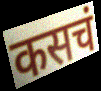
कसचं